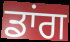
ਡਾਂਗ